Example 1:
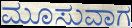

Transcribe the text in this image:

ಮೂಸುವಾಗ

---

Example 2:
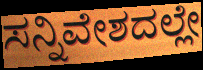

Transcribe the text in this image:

ಸನ್ನಿವೇಶದಲ್ಲೇ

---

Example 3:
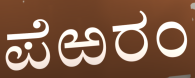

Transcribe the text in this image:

ಪೆಱರಂ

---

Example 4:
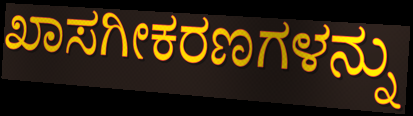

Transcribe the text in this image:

ಖಾಸಗೀಕರಣಗಳನ್ನು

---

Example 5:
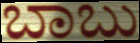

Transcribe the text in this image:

ಬಾಬು